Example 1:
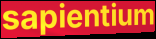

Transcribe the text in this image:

sapientium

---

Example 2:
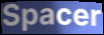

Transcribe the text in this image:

Spacer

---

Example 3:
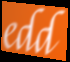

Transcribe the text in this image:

edd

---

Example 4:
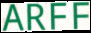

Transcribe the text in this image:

ARFF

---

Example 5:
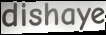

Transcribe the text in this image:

dishaye